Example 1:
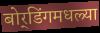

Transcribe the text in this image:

बोर्डिंगमधल्या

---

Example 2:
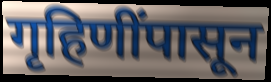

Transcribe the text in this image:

गृहिणींपासून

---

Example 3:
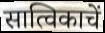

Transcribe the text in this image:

सात्विकाचें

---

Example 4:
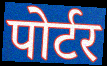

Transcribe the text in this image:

पोर्टर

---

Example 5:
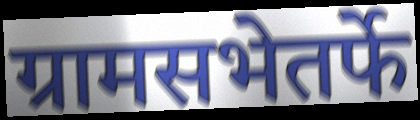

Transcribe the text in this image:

ग्रामसभेतर्फे